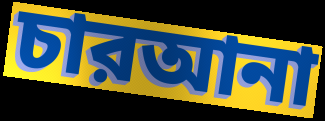
চারআনা